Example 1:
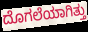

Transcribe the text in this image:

ದೊಗಲೆಯಾಗಿತ್ತು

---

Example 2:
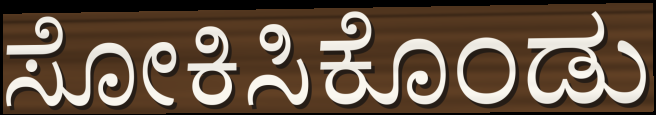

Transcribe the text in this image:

ಸೋಕಿಸಿಕೊಂಡು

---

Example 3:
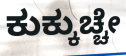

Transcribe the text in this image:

ಕುಕ್ಕುಚ್ಚೇ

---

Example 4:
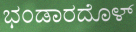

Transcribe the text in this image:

ಭಂಡಾರದೊಳ್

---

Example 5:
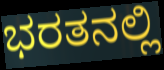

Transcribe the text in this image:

ಭರತನಲ್ಲಿ